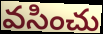
వసించు